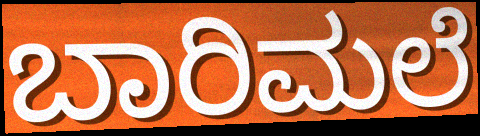
ಬಾರಿಮಲೆ